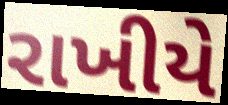
રાખીયે